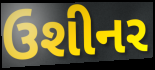
ઉશીનર